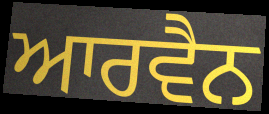
ਆਰਵੈਨ